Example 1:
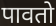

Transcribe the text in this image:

पावतो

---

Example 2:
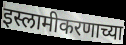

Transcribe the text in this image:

इस्लामीकरणाच्या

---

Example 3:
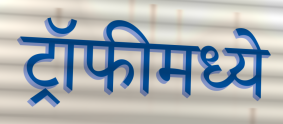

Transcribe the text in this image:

ट्रॉफीमध्ये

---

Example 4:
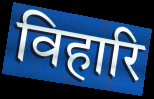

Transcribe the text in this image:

विहारि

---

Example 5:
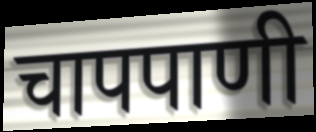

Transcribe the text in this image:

चापपाणी